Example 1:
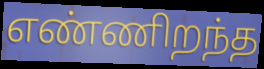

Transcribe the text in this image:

எண்ணிறந்த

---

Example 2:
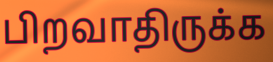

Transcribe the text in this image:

பிறவாதிருக்க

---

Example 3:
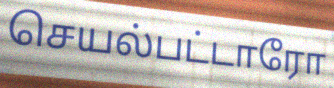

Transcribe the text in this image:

செயல்பட்டாரோ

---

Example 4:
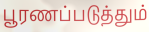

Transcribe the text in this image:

பூரணப்படுத்தும்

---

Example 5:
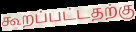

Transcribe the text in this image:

கூறப்பட்டதற்கு